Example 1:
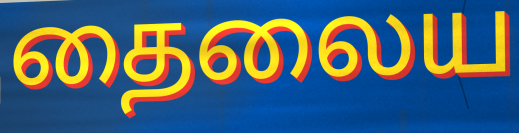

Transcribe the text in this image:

தைலைய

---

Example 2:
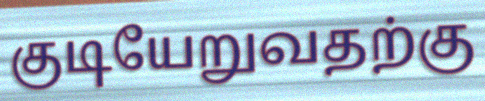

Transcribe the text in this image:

குடியேறுவதற்கு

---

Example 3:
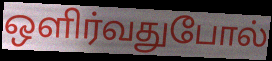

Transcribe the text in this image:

ஒளிர்வதுபோல்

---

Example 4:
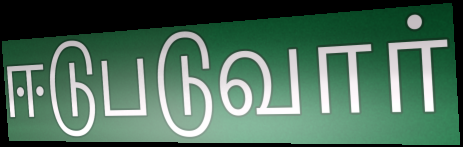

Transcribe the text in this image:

ஈடுபடுவார்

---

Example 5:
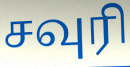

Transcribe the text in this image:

சவுரி